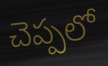
చెప్పలో